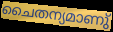
ചൈതന്യമാണു്